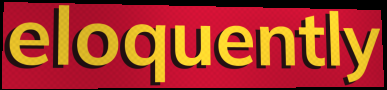
eloquently